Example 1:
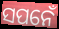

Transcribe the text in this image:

ସପନେଁ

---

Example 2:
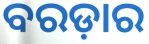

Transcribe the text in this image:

ବରଡ଼ାର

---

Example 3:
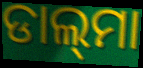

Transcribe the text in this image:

ଡାଲ୍‍ମା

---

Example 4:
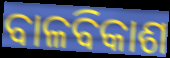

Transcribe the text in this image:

ବାଳବିକାଶ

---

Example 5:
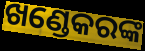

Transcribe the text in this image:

ଖଣ୍ଡେକରଙ୍କ